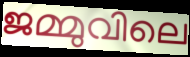
ജമ്മുവിലെ